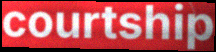
courtship